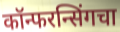
कॉन्फरन्सिंगचा